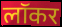
लॉकर